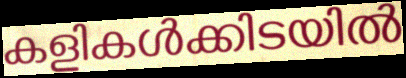
കളികൾക്കിടയിൽ